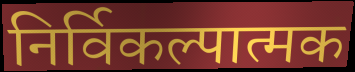
निर्विकल्पात्मक